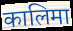
कालिमा